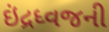
ઇંદ્રધ્વજની